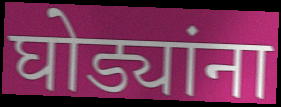
घोड्यांना